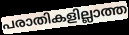
പരാതികളില്ലാത്ത